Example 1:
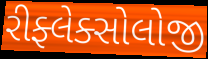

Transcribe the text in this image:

રીફ્લેક્સોલોજી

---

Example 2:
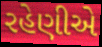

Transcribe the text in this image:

રહેણીએ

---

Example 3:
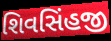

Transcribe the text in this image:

શિવસિંહજી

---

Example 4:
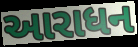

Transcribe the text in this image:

આરાધન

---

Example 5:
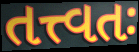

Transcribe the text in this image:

તત્ત્વતઃ